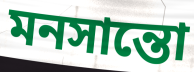
মনসান্তো